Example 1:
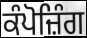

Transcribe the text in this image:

ਕੰਪੋਜ਼ਿੰਗ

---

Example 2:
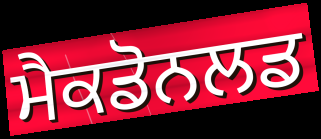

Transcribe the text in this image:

ਮੈਕਡੋਨਲਡ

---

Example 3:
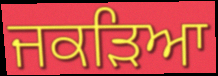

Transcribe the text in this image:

ਜਕੜਿਆ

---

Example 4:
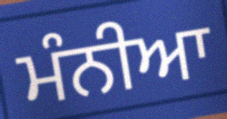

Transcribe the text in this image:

ਮੰਨੀਆ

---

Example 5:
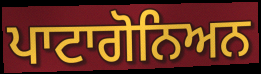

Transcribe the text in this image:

ਪਾਟਾਗੋਨਿਅਨ